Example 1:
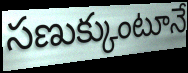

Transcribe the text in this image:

సణుక్కుంటూనే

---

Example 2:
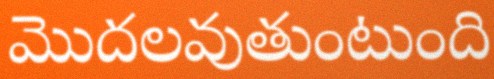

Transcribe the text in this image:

మొదలవుతుంటుంది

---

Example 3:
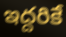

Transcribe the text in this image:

ఇద్దరికే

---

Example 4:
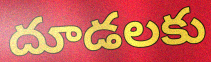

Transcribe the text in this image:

దూడలకు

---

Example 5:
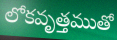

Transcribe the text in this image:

లోకవృత్తముతో